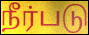
நீர்படு